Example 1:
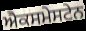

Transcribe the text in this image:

ਐਕਸਮੇਸਟੇਨ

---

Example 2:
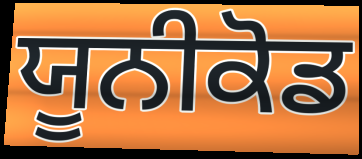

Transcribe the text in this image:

ਯੂਨੀਕੋਡ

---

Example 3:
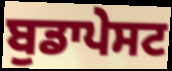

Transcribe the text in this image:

ਬੁਡਾਪੇਸਟ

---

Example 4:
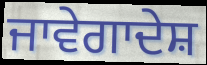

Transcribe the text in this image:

ਜਾਵੇਗਾਦੇਸ਼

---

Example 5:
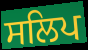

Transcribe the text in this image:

ਸਲਿਪ